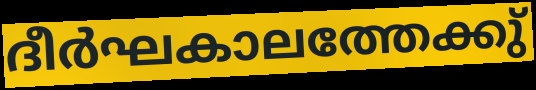
ദീർഘകാലത്തേക്കു്